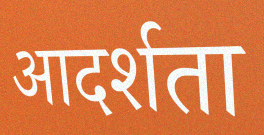
आदर्शता